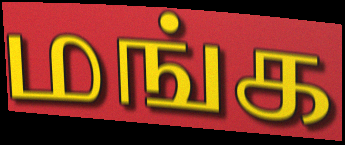
மங்க